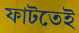
ফাটতেই